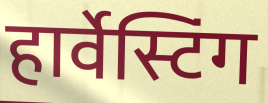
हार्वेस्टिंग